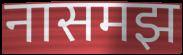
नासमझ